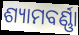
ଶ୍ୟାମବର୍ଣ୍ଣା